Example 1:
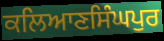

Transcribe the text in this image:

ਕਲਿਆਣਸਿੰਘਪੁਰ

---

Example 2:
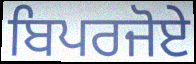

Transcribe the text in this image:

ਬਿਪਰਜੋਏ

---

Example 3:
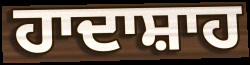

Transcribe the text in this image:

ਹਾਦਾਸ਼ਾਹ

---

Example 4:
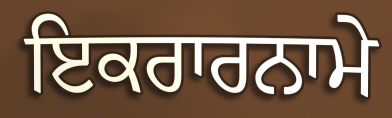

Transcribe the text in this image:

ਇਕਰਾਰਨਾਮੇ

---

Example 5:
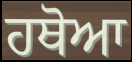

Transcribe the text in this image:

ਹਥੋਆ